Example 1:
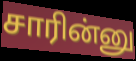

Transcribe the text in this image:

சாரின்னு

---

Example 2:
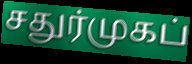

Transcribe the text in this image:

சதுர்முகப்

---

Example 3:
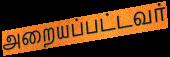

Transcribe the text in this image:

அறையப்பட்டவர்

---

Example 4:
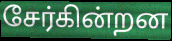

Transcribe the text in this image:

சேர்கின்றன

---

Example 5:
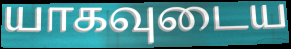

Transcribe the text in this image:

யாகவுடைய